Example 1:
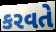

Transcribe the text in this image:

કરવતે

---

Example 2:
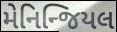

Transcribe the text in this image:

મેનિન્જિયલ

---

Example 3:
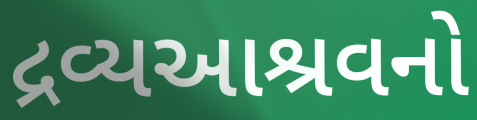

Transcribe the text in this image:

દ્રવ્યઆશ્રવનો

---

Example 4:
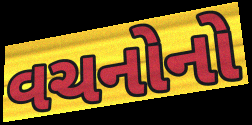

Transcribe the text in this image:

વચનોનો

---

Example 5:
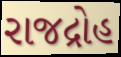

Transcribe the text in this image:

રાજદ્રોહ